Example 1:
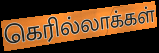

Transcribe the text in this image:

கெரில்லாக்கள்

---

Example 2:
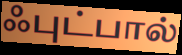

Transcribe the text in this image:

ஃபுட்பால்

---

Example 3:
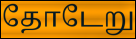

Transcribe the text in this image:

தோடேறு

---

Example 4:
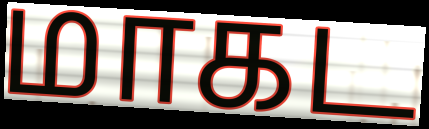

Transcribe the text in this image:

மாகட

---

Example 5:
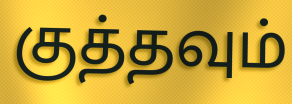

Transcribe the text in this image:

குத்தவும்